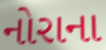
નોરાના